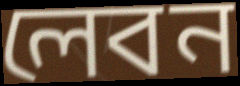
লেবন